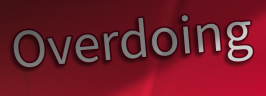
Overdoing